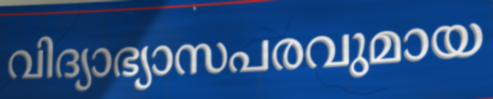
വിദ്യാഭ്യാസപരവുമായ